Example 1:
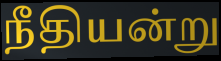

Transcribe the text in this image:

நீதியன்று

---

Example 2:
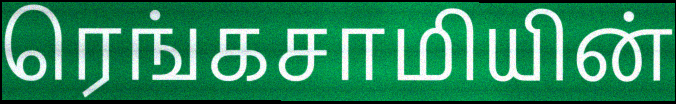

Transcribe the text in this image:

ரெங்கசாமியின்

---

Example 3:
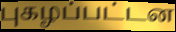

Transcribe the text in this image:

புகழப்பட்டன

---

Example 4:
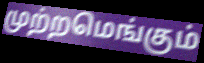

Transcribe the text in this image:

முற்றமெங்கும்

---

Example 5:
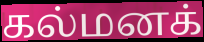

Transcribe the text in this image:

கல்மனக்